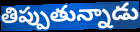
తిప్పుతున్నాడు